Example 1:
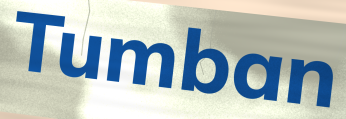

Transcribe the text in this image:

Tumban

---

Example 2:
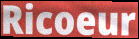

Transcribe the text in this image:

Ricoeur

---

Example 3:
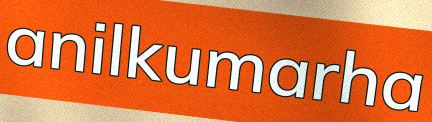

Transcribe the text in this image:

anilkumarha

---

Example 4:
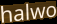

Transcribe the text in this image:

halwo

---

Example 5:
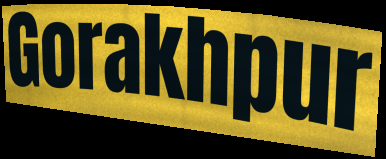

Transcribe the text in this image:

Gorakhpur